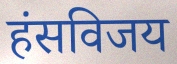
हंसविजय